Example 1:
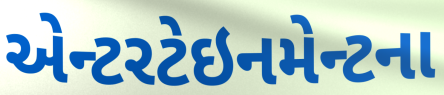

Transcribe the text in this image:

એન્ટરટેઇનમેન્ટના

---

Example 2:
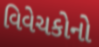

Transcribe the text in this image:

વિવેચકોનો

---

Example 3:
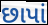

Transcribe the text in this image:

છાપાં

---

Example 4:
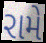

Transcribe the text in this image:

રામે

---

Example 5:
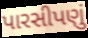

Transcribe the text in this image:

પારસીપણું